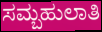
ಸಮ್ಬಹುಲಾತಿ